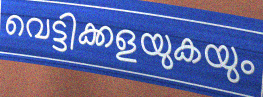
വെട്ടിക്കളയുകയും